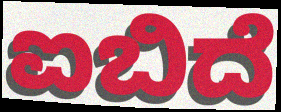
ಐಬಿದೆ